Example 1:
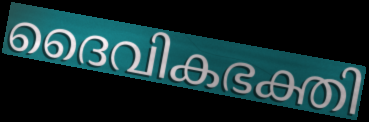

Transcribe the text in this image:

ദൈവികഭക്തി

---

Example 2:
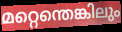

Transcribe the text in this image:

മറ്റെന്തെങ്കിലും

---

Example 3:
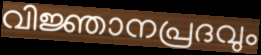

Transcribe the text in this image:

വിജ്ഞാനപ്രദവും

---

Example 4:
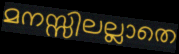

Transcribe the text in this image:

മനസ്സിലല്ലാതെ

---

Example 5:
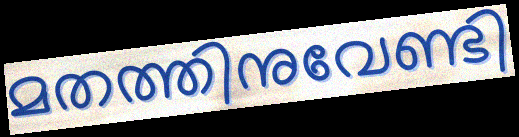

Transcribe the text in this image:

മതത്തിനുവേണ്ടി